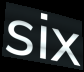
six